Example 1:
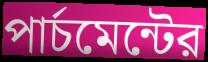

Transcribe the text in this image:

পার্চমেন্টের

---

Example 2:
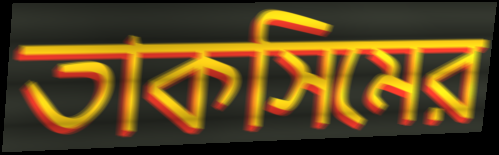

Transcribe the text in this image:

তাকসিমের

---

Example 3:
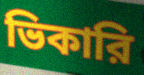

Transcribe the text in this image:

ভিকারি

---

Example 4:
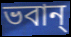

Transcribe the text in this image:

ভবান্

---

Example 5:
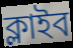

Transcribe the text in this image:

ক্লাইব